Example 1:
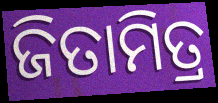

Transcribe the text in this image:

ଜିତାମିତ୍ର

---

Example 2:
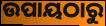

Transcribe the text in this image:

ଉପାୟଠାରୁ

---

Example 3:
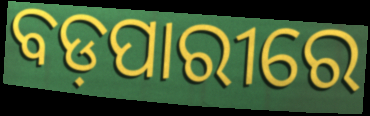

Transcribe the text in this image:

ବଡ଼ପାରୀରେ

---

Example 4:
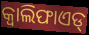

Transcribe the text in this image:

କ୍ୱାଲିଫାଏଡ୍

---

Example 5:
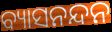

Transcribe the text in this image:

ବ୍ୟାସନନ୍ଦନ